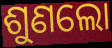
ଶୁଣଲୋ